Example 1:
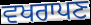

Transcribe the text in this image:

ਵਖਰਾਪਣ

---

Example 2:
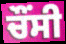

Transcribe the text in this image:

ਚੌਂਸੀ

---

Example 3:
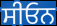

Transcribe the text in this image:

ਸੀਓਨ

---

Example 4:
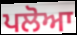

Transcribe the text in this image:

ਪਲੋਆ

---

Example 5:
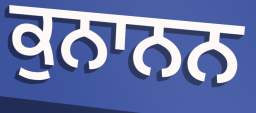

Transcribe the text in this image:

ਕੁਨਾਨਨ